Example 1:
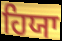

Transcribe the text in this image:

ਹਿਯਾ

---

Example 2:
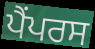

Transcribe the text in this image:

ਪੈਂਪਰਸ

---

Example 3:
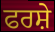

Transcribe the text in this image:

ਫਰਸ਼ੇ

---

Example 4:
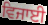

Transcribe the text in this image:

ਵਿਜਾਈ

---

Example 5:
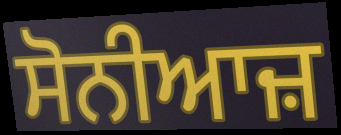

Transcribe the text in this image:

ਸੋਨੀਆਜ਼